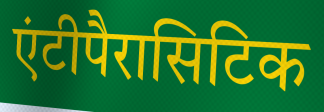
एंटीपैरासिटिक